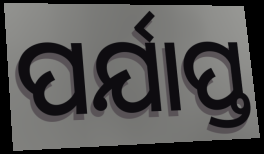
ପର୍ଯାପ୍ତ